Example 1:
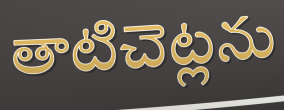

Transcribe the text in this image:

తాటిచెట్లను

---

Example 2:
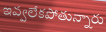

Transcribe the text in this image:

ఇవ్వలేకపోతున్నారు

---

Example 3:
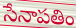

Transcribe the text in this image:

సేనాపతిం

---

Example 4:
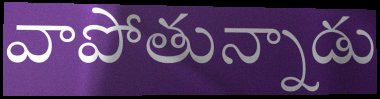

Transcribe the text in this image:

వాపోతున్నాడు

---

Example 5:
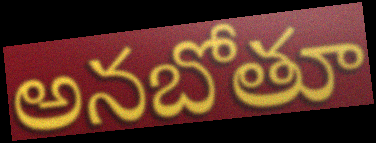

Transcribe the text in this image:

అనబోతూ